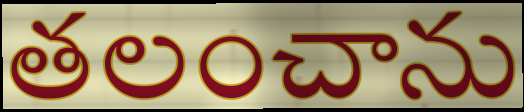
తలంచాను